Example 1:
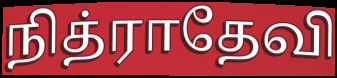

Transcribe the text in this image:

நித்ராதேவி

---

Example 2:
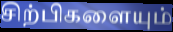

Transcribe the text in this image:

சிற்பிகளையும்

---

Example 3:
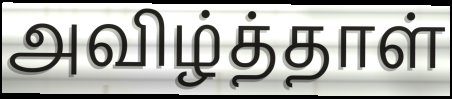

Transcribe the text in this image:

அவிழ்த்தாள்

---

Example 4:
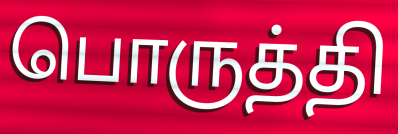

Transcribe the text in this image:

பொருத்தி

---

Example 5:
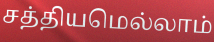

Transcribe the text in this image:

சத்தியமெல்லாம்